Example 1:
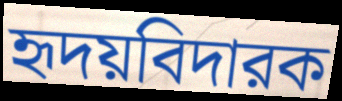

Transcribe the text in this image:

হৃদয়বিদারক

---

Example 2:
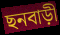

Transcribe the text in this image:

ছনবাড়ী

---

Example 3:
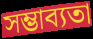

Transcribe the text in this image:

সম্ভাব্যতা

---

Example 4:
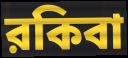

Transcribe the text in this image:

রকিবা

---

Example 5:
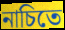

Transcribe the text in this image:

নাচিতে